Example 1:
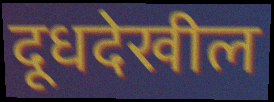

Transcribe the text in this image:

दूधदेखील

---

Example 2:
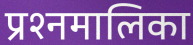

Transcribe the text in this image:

प्रश्नमालिका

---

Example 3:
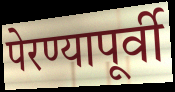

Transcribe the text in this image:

पेरण्यापूर्वी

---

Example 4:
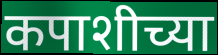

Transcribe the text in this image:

कपाशीच्या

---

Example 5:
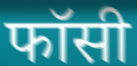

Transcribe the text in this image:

फॉसी